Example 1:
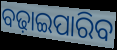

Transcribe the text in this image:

ବଢ଼ାଇପାରିବ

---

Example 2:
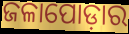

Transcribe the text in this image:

ଜଳାପୋଡ଼ାର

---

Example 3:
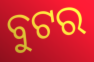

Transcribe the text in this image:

ବୁଟର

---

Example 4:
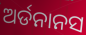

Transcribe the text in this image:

ଅର୍ଡନାନସ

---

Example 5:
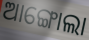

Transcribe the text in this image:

ଆଙ୍ଗୋଲା